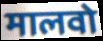
मालवो